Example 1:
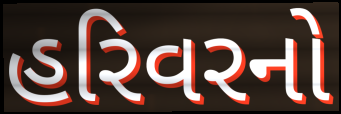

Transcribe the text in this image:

હરિવરનો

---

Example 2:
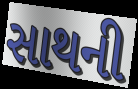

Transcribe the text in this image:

સાથની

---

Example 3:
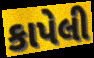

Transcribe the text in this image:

કાપેલી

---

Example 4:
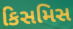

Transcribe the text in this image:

કિસમિસ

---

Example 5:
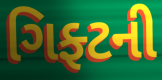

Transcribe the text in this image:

ગિફ્ટની